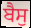
ਬੈਸੁ